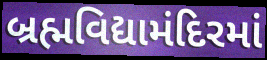
બ્રહ્મવિદ્યામંદિરમાં